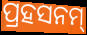
ପ୍ରହସନମ୍